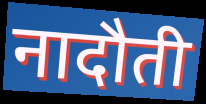
नादौती